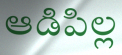
ఆడిపిల్ల